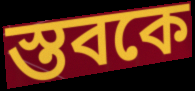
স্তবকে